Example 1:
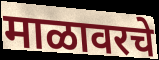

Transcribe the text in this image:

माळावरचे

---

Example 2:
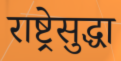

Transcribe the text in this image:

राष्ट्रेसुद्धा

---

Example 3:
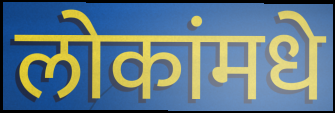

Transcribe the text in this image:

लोकांमधे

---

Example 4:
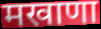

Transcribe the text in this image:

मखाणा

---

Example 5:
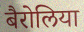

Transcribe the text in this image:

बैरोलिया